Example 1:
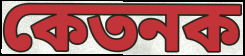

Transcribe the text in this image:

কেতনক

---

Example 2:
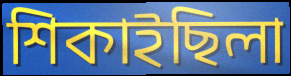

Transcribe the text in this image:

শিকাইছিলা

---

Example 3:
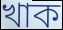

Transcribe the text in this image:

খাক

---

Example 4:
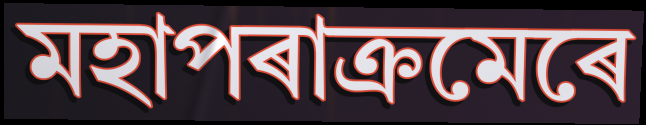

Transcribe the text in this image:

মহাপৰাক্ৰমেৰে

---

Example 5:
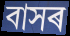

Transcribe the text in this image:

বাসৰ